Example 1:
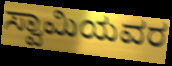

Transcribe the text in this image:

ಸ್ವಾಮಿಯವರ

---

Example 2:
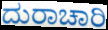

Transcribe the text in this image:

ದುರಾಚಾರಿ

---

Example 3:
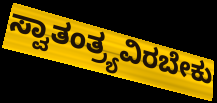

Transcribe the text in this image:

ಸ್ವಾತಂತ್ರ್ಯವಿರಬೇಕು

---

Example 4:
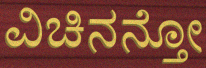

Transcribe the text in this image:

ವಿಚಿನನ್ತೋ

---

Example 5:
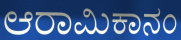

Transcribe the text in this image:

ಆರಾಮಿಕಾನಂ